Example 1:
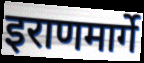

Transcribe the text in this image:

इराणमार्गे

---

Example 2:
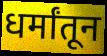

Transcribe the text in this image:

धर्मांतून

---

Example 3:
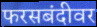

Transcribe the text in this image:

फरसबंदीवर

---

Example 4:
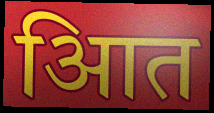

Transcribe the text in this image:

आित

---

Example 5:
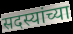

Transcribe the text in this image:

सदस्यांच्या